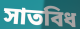
সাতবিধ